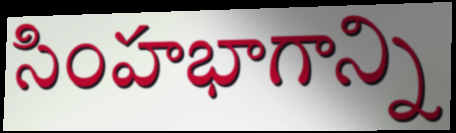
సింహభాగాన్ని